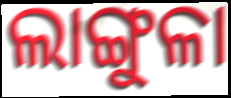
ଲାଙ୍ଗୁଳା